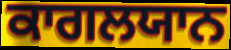
ਕਾਗਲਯਾਨ